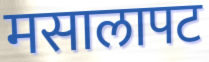
मसालापट